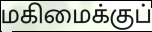
மகிமைக்குப்